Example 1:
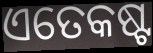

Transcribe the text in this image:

ଏତେକଷ୍ଟ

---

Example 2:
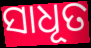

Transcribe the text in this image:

ସାଧୂତ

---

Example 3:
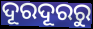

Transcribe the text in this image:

ଦୂରଦୂରରୁ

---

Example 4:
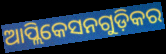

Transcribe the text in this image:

ଆପ୍ଲିକେସନଗୁଡ଼ିକର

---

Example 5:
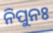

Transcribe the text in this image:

ନିପୁନଃ